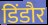
डिंडौर